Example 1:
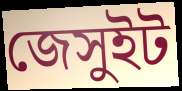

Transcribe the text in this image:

জেসুইট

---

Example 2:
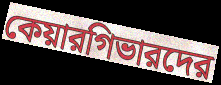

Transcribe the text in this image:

কেয়ারগিভারদের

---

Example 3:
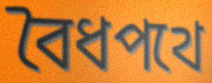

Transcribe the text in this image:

বৈধপথে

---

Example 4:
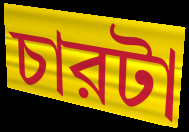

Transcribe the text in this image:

চারটা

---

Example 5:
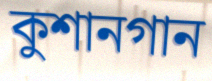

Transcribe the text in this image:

কুশানগান